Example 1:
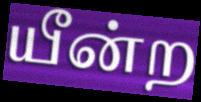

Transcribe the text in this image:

யீன்ற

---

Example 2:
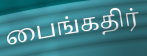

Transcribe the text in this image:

பைங்கதிர்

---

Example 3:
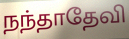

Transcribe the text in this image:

நந்தாதேவி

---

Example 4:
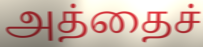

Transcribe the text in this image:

அத்தைச்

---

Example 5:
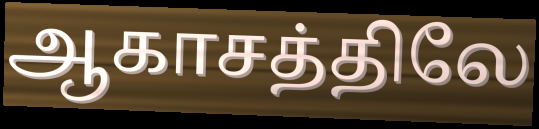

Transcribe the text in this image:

ஆகாசத்திலே